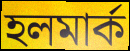
হলমার্ক